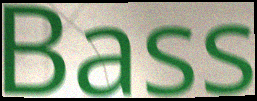
Bass